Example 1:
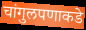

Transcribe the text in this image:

चांगुलपणाकडे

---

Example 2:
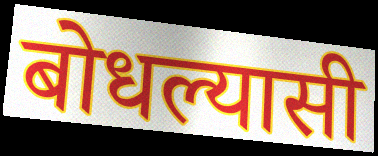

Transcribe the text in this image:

बोधल्यासी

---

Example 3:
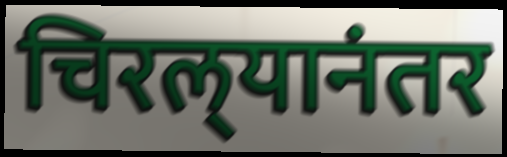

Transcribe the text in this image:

चिरल्यानंतर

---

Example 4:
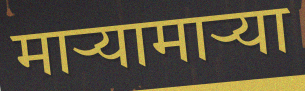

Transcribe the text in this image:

माऱ्यामाऱ्या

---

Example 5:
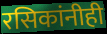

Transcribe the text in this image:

रसिकांनीही